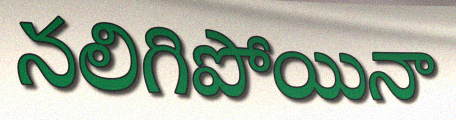
నలిగిపోయినా